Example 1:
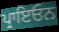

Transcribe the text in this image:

ਪ੍ਰਾਇਓਨ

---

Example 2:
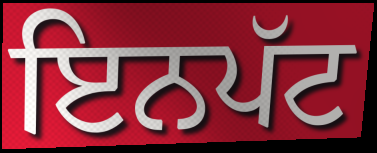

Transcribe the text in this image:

ਇਨਪੱਟ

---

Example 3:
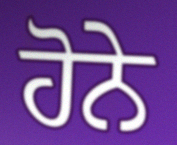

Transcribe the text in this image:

ਹੋਨੇ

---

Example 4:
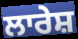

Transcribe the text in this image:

ਲਾਰੇਸ਼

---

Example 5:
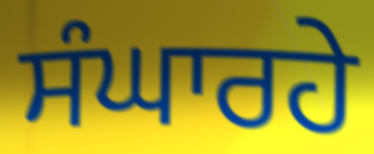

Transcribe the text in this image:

ਸੰਘਾਰਹੇ